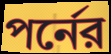
পর্নের